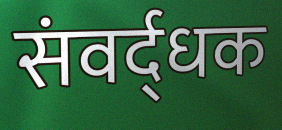
संवर्द्धक